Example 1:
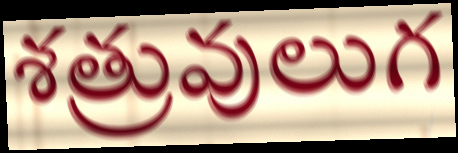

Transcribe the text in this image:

శత్రువులుగ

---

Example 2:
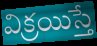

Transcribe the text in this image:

విక్రయిస్తే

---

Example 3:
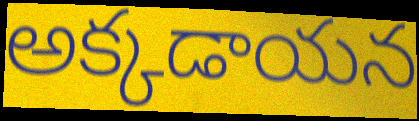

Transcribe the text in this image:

అక్కడాయన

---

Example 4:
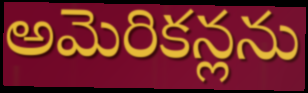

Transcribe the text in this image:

అమెరికన్లను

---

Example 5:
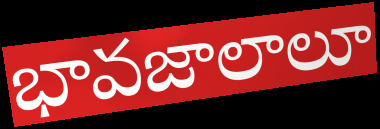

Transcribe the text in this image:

భావజాలాలూ